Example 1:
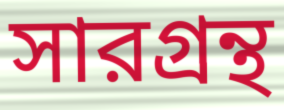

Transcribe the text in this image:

সারগ্রন্থ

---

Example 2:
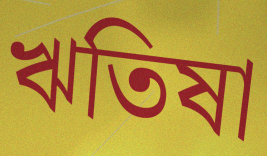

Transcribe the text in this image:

ঋতিষা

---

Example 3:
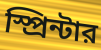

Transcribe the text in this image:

স্প্রিন্টার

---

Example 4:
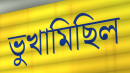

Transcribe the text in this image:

ভুখামিছিল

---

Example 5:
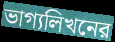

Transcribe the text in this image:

ভাগ্যলিখনের